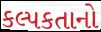
કલ્પકતાનો